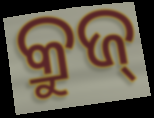
କ୍ରୁଜ୍